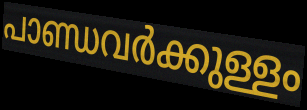
പാണ്ഡവർക്കുള്ളം